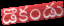
డొకండు